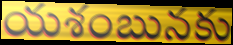
యశంబునకు